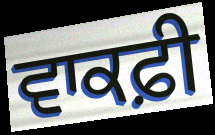
ਵਾਕਫ਼ੀ